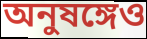
অনুষঙ্গেও